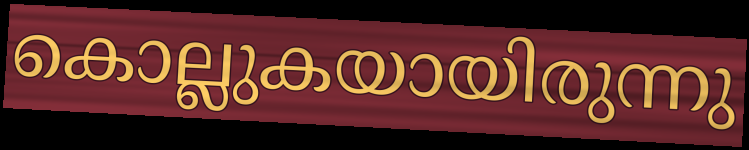
കൊല്ലുകയായിരുന്നു